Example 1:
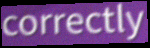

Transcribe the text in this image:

correctly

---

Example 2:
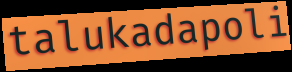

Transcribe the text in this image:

talukadapoli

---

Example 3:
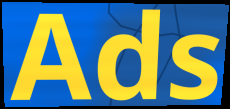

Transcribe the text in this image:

Ads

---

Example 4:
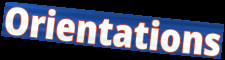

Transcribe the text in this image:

Orientations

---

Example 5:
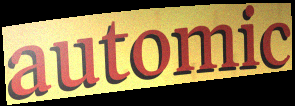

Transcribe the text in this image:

automic